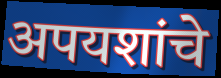
अपयशांचे